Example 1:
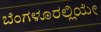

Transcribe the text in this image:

ಬೆಂಗಳೂರಲ್ಲಿಯೇ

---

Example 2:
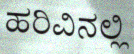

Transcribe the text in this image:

ಹರಿವಿನಲ್ಲಿ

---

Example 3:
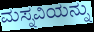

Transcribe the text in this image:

ಮಸ್ನವಿಯನ್ನು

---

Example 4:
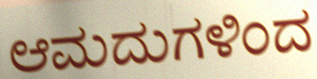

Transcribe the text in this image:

ಆಮದುಗಳಿಂದ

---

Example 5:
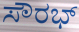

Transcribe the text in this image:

ಸೌರಭ್